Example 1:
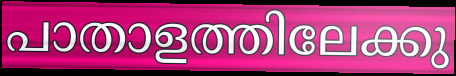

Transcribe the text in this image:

പാതാളത്തിലേക്കു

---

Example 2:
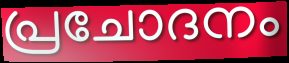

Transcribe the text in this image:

പ്രചോദനം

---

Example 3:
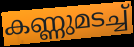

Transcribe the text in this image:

കണ്ണുമടച്ച്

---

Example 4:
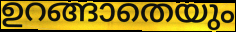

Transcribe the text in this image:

ഉറങ്ങാതെയും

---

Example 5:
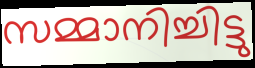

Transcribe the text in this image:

സമ്മാനിച്ചിട്ടു